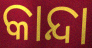
କାନ୍ଦା